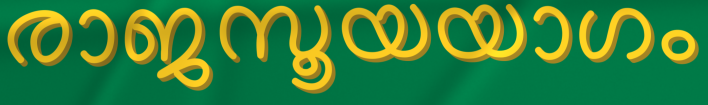
രാജസൂയയാഗം